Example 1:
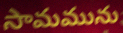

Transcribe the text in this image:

సామమును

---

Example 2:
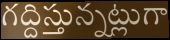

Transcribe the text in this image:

గద్దిస్తున్నట్లుగా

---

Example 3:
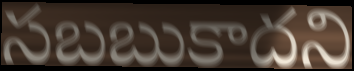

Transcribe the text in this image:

సబబుకాదని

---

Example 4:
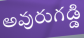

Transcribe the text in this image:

అవురుగడ్డి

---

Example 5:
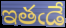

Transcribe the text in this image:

ఇతఁడే